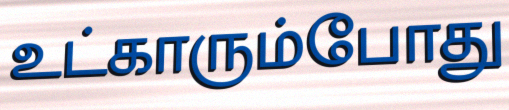
உட்காரும்போது